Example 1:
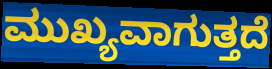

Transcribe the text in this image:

ಮುಖ್ಯವಾಗುತ್ತದೆ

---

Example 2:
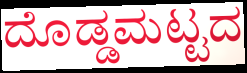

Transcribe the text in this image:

ದೊಡ್ಡಮಟ್ಟದ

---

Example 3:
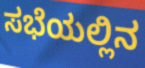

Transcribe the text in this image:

ಸಭೆಯಲ್ಲಿನ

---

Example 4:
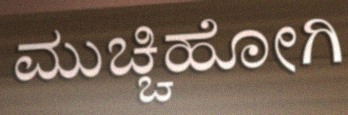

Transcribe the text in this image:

ಮುಚ್ಚಿಹೋಗಿ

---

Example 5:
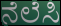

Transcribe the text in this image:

ನೆಲೆಸಿ